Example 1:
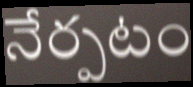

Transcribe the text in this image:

నేర్పటం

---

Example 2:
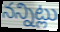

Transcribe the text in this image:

నన్నిట్లు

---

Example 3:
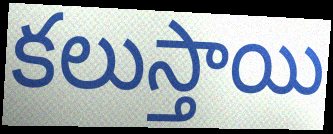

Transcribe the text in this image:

కలుస్తాయి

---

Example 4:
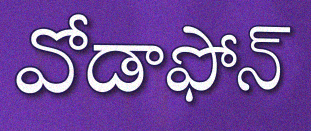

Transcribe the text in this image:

వోడాఫోన్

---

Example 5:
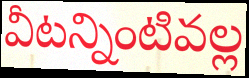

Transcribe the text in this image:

వీటన్నింటివల్ల